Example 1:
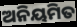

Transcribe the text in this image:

ଅନିୟମିତ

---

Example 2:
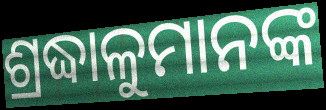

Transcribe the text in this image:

ଶ୍ରଦ୍ଧାଳୁମାନଙ୍କ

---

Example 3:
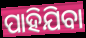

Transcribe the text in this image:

ପାହିଯିବା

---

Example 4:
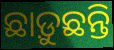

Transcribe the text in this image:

ଛାଡ଼ୁଛନ୍ତି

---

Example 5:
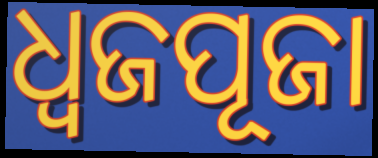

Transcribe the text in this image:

ଧ୍ୱଜପୂଜା